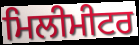
ਮਿਲੀਮੀਟਰ